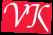
VK